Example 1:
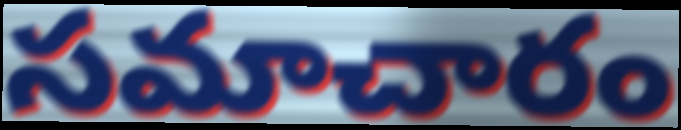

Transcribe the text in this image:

సమాచారం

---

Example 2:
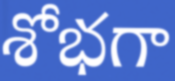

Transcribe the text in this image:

శోభగా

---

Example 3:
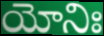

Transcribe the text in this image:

యోనిః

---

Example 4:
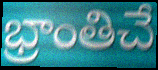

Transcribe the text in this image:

భ్రాంతిచే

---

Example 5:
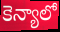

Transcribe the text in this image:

కెన్యాలో